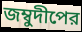
জম্বুদীপের